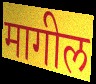
मागील